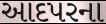
આદપરના